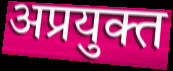
अप्रयुक्त